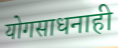
योगसाधनाही